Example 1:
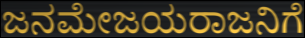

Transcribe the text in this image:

ಜನಮೇಜಯರಾಜನಿಗೆ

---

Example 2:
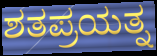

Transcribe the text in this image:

ಶತಪ್ರಯತ್ನ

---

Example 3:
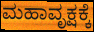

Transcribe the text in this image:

ಮಹಾವೃಕ್ಷಕ್ಕೆ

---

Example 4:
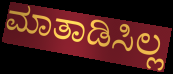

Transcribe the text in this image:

ಮಾತಾಡಿಸಿಲ್ಲ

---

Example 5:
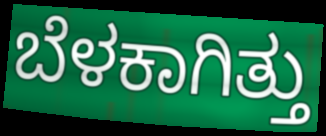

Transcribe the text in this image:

ಬೆಳಕಾಗಿತ್ತು